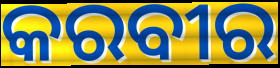
କରବୀର